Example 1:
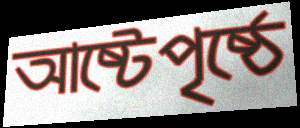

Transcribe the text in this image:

আষ্টেপৃষ্ঠে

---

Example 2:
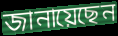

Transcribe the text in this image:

জানায়েছেন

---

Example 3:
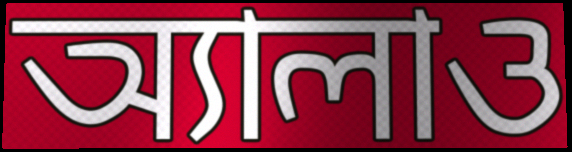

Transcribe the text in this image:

অ্যালাও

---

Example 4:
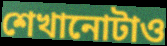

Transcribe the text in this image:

শেখানোটাও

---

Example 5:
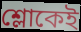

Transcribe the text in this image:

শ্লোকেই